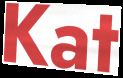
Kat